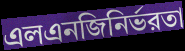
এলএনজিনির্ভরতা